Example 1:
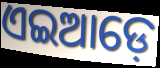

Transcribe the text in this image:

ଏଇଆଡ଼େ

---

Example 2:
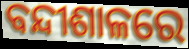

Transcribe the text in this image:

ବନ୍ଦୀଶାଳରେ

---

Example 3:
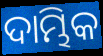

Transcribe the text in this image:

ଦାମ୍ଭିକ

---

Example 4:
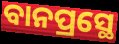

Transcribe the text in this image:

ବାନପ୍ରସ୍ଥେ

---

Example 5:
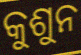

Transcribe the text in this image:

କୁଶୁନ